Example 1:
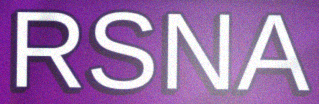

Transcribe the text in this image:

RSNA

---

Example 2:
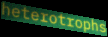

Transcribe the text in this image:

heterotrophs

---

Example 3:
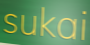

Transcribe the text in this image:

sukai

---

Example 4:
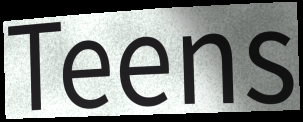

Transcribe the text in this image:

Teens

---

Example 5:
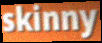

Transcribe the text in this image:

skinny